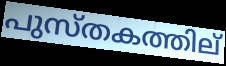
പുസ്തകത്തില്